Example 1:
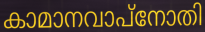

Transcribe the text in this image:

കാമാനവാപ്നോതി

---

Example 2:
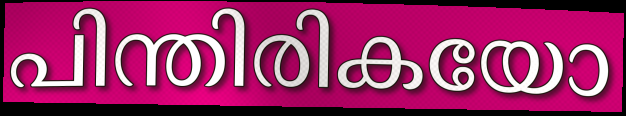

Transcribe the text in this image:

പിന്തിരികയോ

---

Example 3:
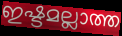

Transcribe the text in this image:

ഇഷ്ടമല്ലാത്ത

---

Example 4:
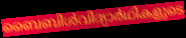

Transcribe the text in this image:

ബൈബിൾവിദ്യാർഥികളുടെ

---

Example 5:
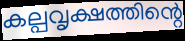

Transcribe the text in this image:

കല്പവൃക്ഷത്തിന്റെ